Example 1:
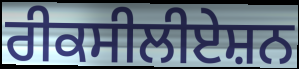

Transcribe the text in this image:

ਰੀਕਸੀਲੀਏਸ਼ਨ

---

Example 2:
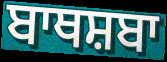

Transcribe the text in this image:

ਬਾਥਸ਼ਬਾ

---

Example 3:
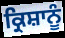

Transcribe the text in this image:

ਕ੍ਰਿਸ਼ਾਨੂੰ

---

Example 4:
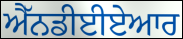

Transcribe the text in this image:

ਐੱਨਡੀਈਏਆਰ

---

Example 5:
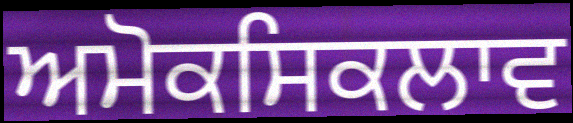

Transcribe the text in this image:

ਅਮੋਕਸਿਕਲਾਵ